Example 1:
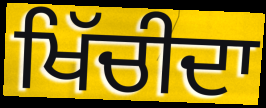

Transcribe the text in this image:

ਖਿੱਚੀਦਾ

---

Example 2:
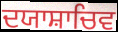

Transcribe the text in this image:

ਦਯਾਸ਼ਾਚਿਵ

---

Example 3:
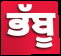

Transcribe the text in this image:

ਭੱਬੂ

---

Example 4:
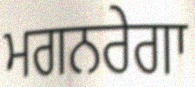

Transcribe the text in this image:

ਮਗਨਰੇਗਾ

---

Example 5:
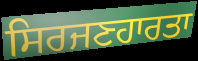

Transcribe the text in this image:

ਸਿਰਜਣਹਾਰਤਾ